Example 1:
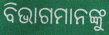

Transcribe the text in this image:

ବିଭାଗମାନଙ୍କୁ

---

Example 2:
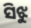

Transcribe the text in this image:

ସିଝୁ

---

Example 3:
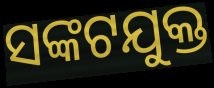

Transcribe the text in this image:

ସଙ୍କଟଯୁକ୍ତ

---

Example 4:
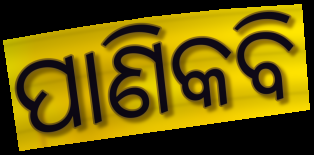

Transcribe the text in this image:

ପାଣିକବି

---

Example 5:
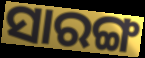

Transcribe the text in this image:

ସାରଙ୍ଗ